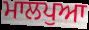
ਮਾਲਪੁਆ